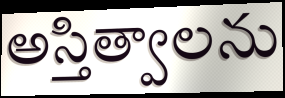
అస్తిత్వాలను